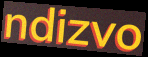
ndizvo